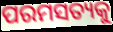
ପରମସତ୍ୟକୁ